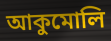
আকুমোলি